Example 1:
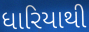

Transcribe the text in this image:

ધારિયાથી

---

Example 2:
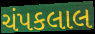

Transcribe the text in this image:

ચંપકલાલ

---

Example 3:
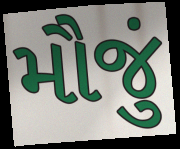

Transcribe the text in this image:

મૌજું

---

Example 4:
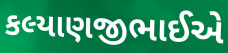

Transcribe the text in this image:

કલ્યાણજીભાઈએ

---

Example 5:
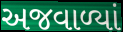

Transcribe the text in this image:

અજવાળ્યાં